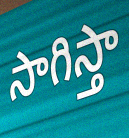
సాగిస్తా